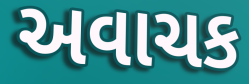
અવાચક